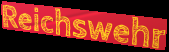
Reichswehr